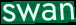
swan